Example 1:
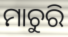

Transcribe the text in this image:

ମାଚୁରି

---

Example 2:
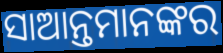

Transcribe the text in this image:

ସାଆନ୍ତମାନଙ୍କର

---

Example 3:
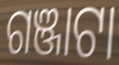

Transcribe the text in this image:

ଗଞ୍ଜାଟା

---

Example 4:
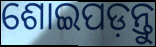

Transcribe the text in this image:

ଶୋଇପଡ଼ନ୍ତୁ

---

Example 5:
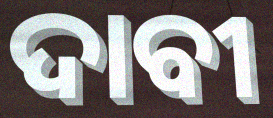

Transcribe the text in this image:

ଦାବୀ